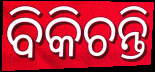
ବିକିଚନ୍ତି